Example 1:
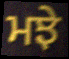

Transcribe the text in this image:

ਮਝੇ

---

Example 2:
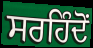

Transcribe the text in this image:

ਸਰਹਿੰਦੋਂ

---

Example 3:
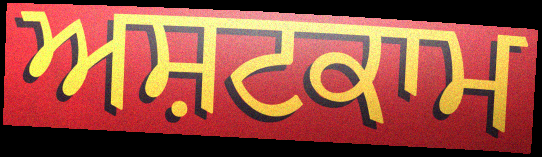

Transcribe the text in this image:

ਅਸ਼ਟਕਾਮ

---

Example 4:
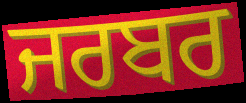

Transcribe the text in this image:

ਜਰਬਰ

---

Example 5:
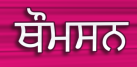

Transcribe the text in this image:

ਥੌਮਸਨ